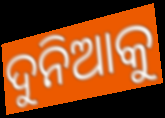
ଦୁନିଆକୁ